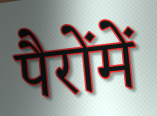
पैरोंमें